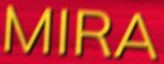
MIRA